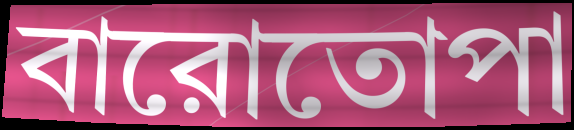
বারোতোপা